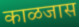
काळजास